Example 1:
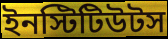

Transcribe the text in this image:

ইনস্টিটিউটস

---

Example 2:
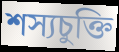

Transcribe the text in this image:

শস্যচুক্তি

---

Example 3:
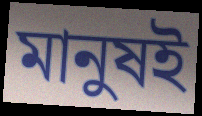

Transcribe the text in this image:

মানুষই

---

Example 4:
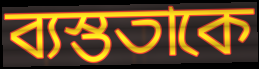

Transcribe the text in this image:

ব্যস্ততাকে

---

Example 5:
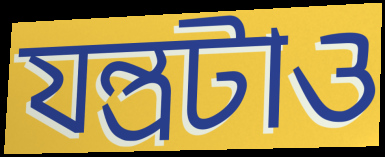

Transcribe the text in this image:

যন্ত্রটাও